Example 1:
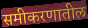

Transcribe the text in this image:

समीकरणातील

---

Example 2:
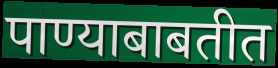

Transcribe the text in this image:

पाण्याबाबतीत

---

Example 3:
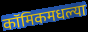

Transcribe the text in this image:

कॉमिकमधल्या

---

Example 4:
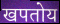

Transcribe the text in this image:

खपतोय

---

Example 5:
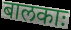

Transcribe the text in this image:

बालकाः